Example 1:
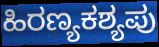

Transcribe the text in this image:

ಹಿರಣ್ಯಕಶ್ಯಪು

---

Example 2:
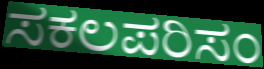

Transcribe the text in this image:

ಸಕಲಪರಿಸಂ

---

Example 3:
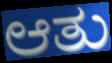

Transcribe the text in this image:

ಆತು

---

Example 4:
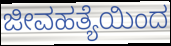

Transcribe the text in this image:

ಜೀವಹತ್ಯೆಯಿಂದ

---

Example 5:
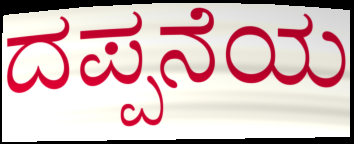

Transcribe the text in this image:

ದಪ್ಪನೆಯ